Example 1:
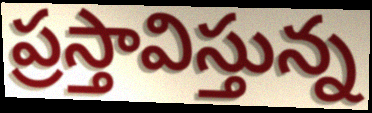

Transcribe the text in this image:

ప్రస్తావిస్తున్న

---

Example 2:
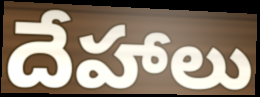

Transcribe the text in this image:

దేహాలు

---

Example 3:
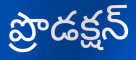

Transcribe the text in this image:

ప్రొడక్షన్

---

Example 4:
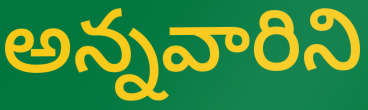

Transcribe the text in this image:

అన్నవారిని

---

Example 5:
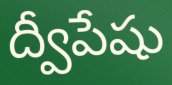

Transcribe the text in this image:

ద్వీపేషు